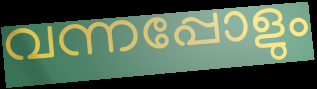
വന്നപ്പോളും